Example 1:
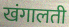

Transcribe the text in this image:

खंगालती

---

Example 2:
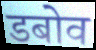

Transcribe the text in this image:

डबोव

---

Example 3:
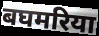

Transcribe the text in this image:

बघमरिया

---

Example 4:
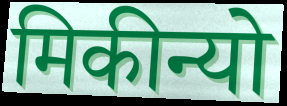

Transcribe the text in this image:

मिकीन्यो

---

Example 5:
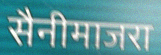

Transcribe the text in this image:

सैनीमाजरा